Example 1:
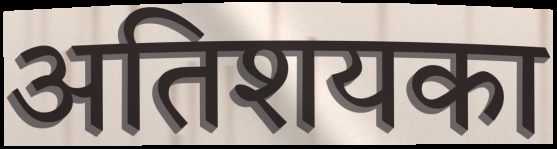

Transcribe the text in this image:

अतिशयका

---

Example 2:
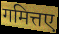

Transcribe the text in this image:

गमित्तए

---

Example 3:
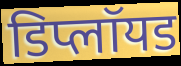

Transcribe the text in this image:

डिप्लॉयड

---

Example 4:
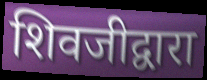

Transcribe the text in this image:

शिवजीद्वारा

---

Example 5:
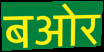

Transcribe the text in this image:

बओर